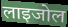
लाइजोल